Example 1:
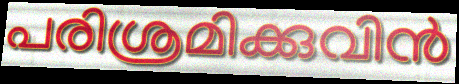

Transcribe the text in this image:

പരിശ്രമിക്കുവിൻ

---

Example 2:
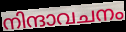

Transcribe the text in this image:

നിന്ദാവചനം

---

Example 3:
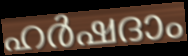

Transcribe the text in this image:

ഹർഷദാം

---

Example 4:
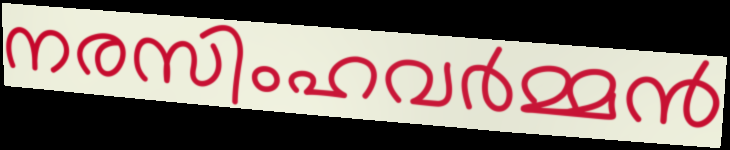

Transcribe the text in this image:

നരസിംഹവർമ്മൻ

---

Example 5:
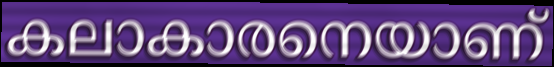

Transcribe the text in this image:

കലാകാരനെയാണ്